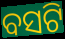
ବସଟି